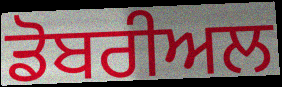
ਡੋਬਰੀਅਲ